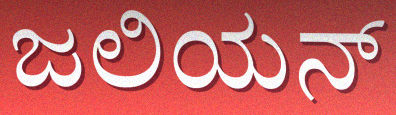
ಜಲಿಯನ್